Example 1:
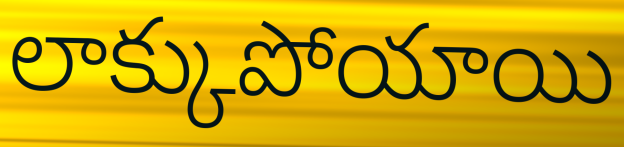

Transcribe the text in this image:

లాక్కుపోయాయి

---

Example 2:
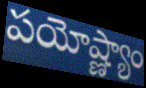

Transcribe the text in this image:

పయోష్ణ్యాం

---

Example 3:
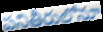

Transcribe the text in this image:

పనితీరులోనూ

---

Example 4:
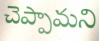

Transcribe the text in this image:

చెప్పామని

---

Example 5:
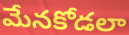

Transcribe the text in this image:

మేనకోడలా